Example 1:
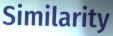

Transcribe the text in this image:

Similarity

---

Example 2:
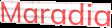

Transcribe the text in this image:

Maradia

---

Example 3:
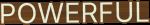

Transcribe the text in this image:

POWERFUL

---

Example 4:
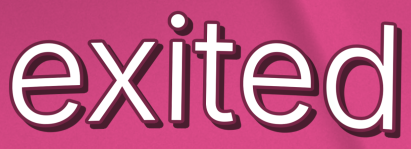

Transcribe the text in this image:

exited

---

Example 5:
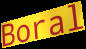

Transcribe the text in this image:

Boral